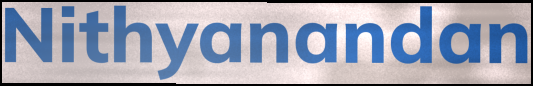
Nithyanandan